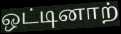
ஒட்டினாற்